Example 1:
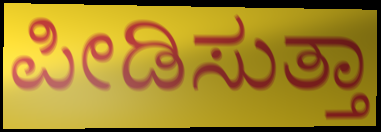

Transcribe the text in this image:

ಪೀಡಿಸುತ್ತಾ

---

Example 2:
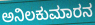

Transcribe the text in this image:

ಅನಿಲಕುಮಾರನ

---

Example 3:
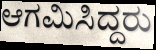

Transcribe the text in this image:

ಆಗಮಿಸಿದ್ದರು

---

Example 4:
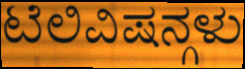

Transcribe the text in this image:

ಟೆಲಿವಿಷನ್ಗಳು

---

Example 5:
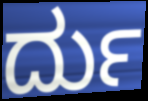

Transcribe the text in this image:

ರ್ದು